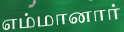
எம்மானார்